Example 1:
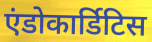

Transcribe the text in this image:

एंडोकार्डिटिस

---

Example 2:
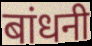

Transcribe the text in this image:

बांधनी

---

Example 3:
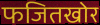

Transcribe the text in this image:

फजितखोर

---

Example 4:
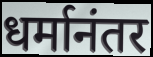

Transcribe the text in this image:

धर्मानंतर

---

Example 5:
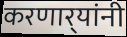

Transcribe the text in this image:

करणार्‍यांनी